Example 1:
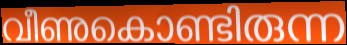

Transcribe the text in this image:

വീണുകൊണ്ടിരുന്ന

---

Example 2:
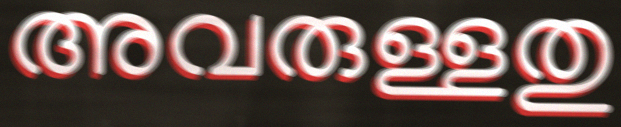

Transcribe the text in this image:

അവരുള്ളതു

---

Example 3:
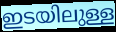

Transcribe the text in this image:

ഇടയിലുള്ള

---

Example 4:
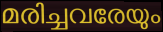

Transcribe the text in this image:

മരിച്ചവരേയും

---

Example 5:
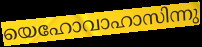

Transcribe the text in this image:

യെഹോവാഹാസിന്നു